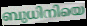
ബുധിനിയെ